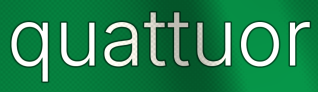
quattuor